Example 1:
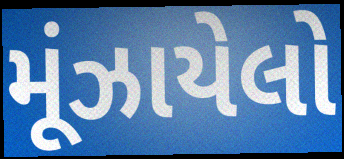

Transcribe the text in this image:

મૂંઝાયેલો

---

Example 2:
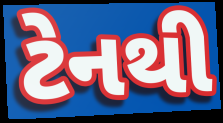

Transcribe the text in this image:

ટેનથી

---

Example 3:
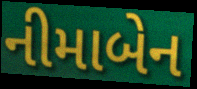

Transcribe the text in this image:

નીમાબેન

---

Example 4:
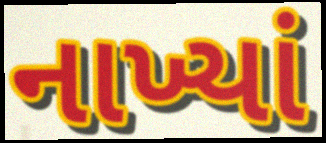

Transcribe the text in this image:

નાખ્યાં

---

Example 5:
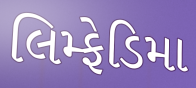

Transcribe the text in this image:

લિમ્ફેડિમા